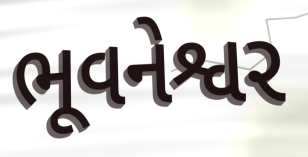
ભૂવનેશ્વર